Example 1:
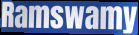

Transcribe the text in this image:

Ramswamy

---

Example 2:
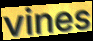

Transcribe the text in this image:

vines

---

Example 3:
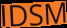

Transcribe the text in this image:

IDSM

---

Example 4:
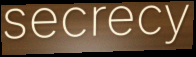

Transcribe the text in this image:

secrecy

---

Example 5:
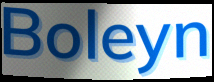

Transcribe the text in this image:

Boleyn